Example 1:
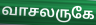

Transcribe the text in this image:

வாசலருகே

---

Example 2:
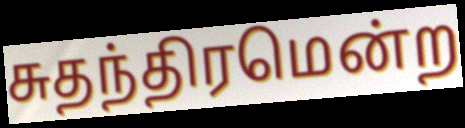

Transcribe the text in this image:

சுதந்திரமென்ற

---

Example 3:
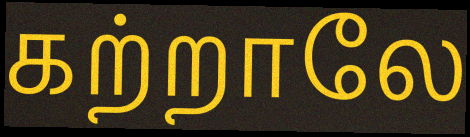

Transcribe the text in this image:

கற்றாலே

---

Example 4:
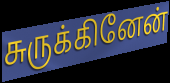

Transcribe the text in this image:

சுருக்கினேன்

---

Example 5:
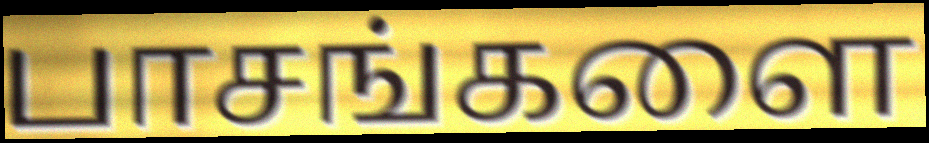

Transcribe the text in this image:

பாசங்களை